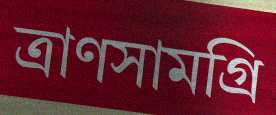
ত্রাণসামগ্রি